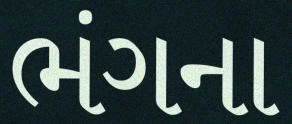
ભંગના